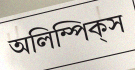
অলিম্পিক্‌স